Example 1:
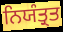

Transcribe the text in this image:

ਨਿਯੰਤ੍ਰਤ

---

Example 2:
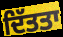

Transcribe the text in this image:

ਦਿੱਤਤਾ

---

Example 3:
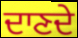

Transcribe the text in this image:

ਦਾਣਦੇ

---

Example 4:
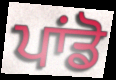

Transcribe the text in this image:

ਪਾਂਡੋ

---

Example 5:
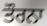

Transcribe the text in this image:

ਤੌਰਨਾ